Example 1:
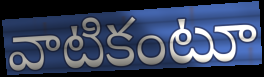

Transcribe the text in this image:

వాటికంటూ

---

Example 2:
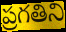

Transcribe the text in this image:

ప్రగతిని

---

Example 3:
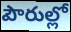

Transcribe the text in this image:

పౌరుల్లో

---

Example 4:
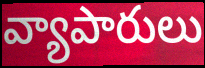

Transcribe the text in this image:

వ్యాపారులు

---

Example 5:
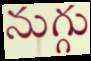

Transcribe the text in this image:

నుగ్గు